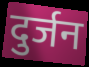
दुर्जन